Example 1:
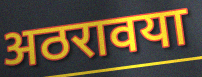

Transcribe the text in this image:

अठरावया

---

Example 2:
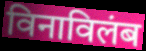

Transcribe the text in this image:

विनाविलंब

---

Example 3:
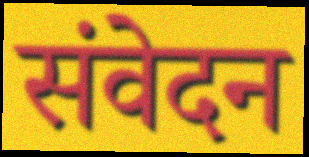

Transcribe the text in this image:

संवेदन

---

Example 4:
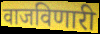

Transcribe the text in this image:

वाजविणारी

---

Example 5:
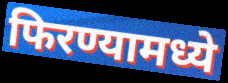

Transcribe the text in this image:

फिरण्यामध्ये